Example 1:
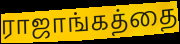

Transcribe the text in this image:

ராஜாங்கத்தை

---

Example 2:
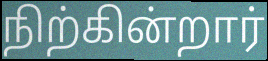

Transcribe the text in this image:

நிற்கின்றார்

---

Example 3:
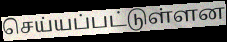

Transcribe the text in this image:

செய்யப்பட்டுள்ளன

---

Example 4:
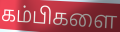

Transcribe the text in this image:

கம்பிகளை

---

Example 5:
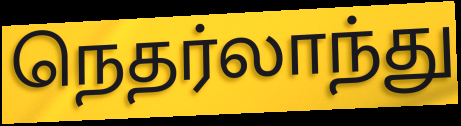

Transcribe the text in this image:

நெதர்லாந்து